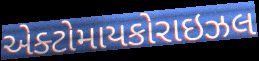
એક્ટોમાયકોરાઇઝલ